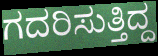
ಗದರಿಸುತ್ತಿದ್ದ